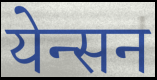
येन्सन